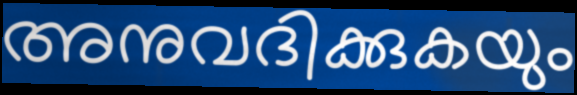
അനുവദിക്കുകയും